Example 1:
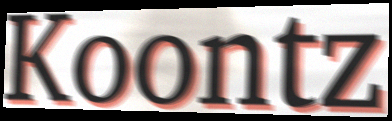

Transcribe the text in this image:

Koontz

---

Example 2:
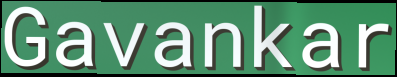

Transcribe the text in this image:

Gavankar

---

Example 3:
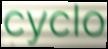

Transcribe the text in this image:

cyclo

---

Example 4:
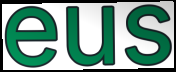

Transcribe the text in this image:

eus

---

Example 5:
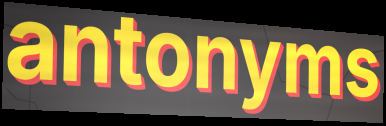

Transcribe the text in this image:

antonyms